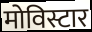
मोविस्टार